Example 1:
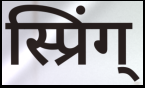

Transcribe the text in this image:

स्प्रिंग्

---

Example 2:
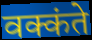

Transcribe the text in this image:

वक्कंते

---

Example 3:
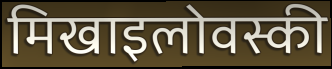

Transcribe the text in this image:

मिखाइलोवस्की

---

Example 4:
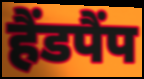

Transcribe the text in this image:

हैंडपैंप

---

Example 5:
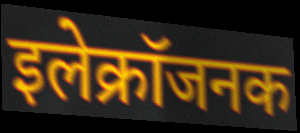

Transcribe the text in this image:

इलेक्रॉजनक